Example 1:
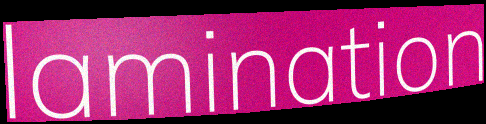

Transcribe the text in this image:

lamination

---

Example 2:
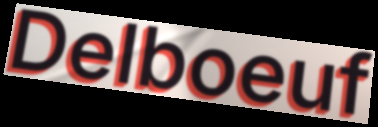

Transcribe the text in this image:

Delboeuf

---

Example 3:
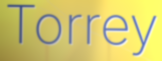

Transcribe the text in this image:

Torrey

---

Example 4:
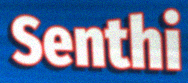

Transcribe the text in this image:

Senthi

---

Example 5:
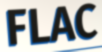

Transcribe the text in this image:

FLAC